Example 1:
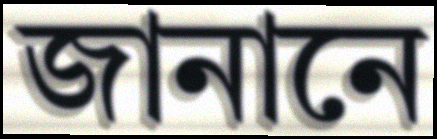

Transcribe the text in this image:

জানানে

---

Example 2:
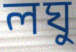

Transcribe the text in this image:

লঘু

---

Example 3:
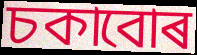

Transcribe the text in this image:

চকাবোৰ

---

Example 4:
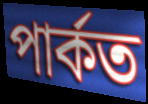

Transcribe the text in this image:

পাৰ্কত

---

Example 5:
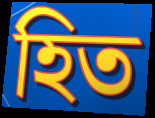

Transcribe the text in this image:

হিত